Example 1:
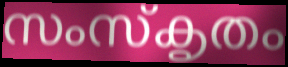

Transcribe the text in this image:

സംസ്‌കൃതം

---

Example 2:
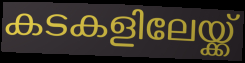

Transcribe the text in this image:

കടകളിലേയ്ക്ക്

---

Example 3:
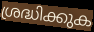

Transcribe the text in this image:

ശ്രദ്ധിക്കുക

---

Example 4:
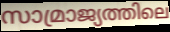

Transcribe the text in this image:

സാമ്രാജ്യത്തിലെ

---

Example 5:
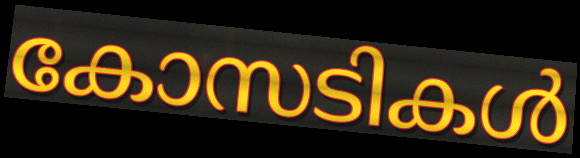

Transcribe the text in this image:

കോസടികൾ